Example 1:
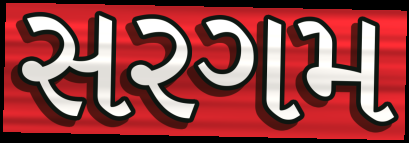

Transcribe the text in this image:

સરગમ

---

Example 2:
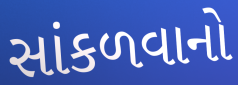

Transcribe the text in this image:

સાંકળવાનો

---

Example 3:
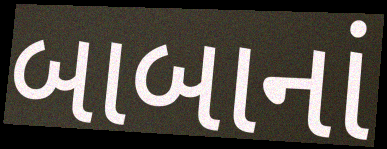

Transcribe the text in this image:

બાબાનાં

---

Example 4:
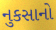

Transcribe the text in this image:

નુકસાનો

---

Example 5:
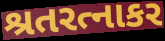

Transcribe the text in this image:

શ્રતરત્નાકર